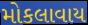
મોકલાવાય